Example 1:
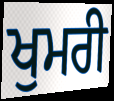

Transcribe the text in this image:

ਖੁਮਰੀ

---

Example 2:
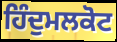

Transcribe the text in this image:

ਹਿੰਦੁਮਲਕੋਟ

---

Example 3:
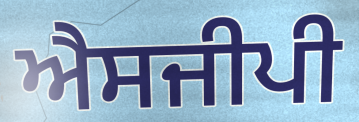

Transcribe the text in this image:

ਐਸਜੀਪੀ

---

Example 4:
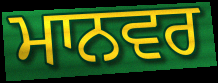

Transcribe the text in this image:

ਮਾਨਵਰ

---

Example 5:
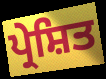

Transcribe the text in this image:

ਪ੍ਰੇਸ਼ਿਤ